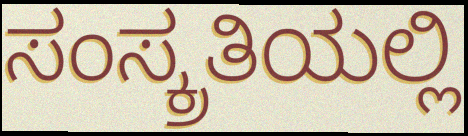
ಸಂಸ್ಕ್ರತಿಯಲ್ಲಿ